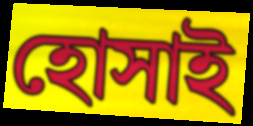
হোসাই